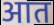
आत